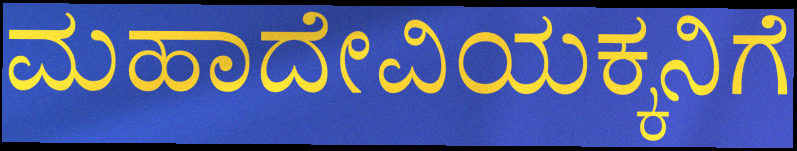
ಮಹಾದೇವಿಯಕ್ಕನಿಗೆ